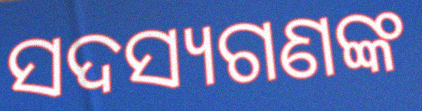
ସଦସ୍ୟଗଣଙ୍କ